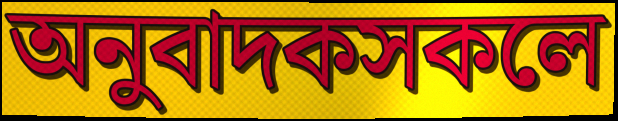
অনুবাদকসকলে